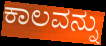
ಕಾಲವನ್ನು